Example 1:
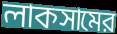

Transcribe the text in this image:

লাকসামের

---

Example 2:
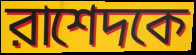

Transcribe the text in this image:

রাশেদকে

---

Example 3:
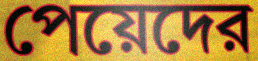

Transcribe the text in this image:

পেয়েদের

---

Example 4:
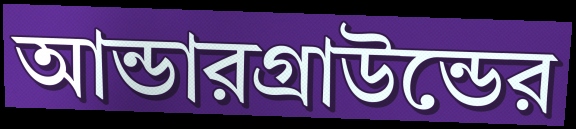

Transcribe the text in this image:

আন্ডারগ্রাউন্ডের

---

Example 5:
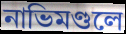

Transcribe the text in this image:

নাভিমণ্ডলে